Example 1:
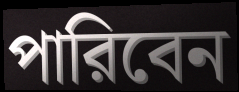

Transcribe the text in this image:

পারিবেন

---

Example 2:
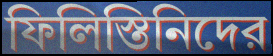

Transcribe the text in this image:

ফিলিস্তিনিদের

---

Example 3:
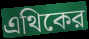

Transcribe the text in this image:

এথিকের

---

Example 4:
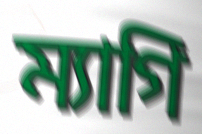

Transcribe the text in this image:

ম্যাগি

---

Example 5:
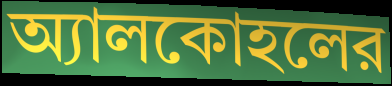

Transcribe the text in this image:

অ্যালকোহলের